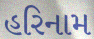
હરિનામ